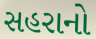
સહરાનો